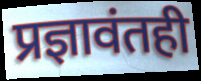
प्रज्ञावंतही